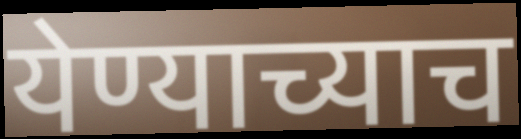
येण्याच्याच